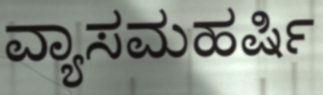
ವ್ಯಾಸಮಹರ್ಷಿ